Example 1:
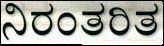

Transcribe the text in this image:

ನಿರಂತರಿತ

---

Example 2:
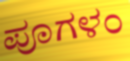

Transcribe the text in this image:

ಪೂಗಳಂ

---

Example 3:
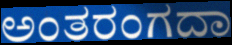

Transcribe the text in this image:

ಅಂತರಂಗದಾ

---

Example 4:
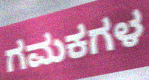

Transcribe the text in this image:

ಗಮಕಗಳ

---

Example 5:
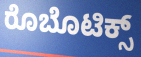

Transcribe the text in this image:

ರೊಬೊಟಿಕ್ಸ್